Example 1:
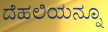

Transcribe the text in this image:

ದೆಹಲಿಯನ್ನೂ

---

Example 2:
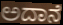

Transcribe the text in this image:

ಅದಾನೆ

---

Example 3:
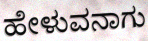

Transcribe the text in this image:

ಹೇಳುವನಾಗು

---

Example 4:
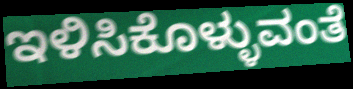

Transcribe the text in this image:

ಇಳಿಸಿಕೊಳ್ಳುವಂತೆ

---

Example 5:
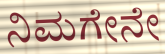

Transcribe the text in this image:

ನಿಮಗೇನೇ